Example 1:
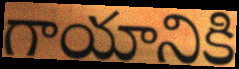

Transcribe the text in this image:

గాయానికి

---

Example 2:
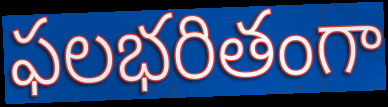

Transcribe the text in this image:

ఫలభరితంగా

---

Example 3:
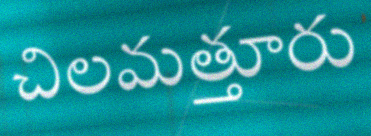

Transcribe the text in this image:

చిలమత్తూరు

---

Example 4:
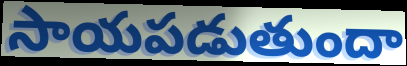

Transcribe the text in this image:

సాయపడుతుందా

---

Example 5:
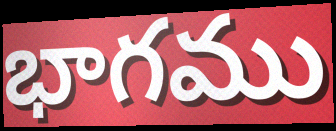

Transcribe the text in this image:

భాగము